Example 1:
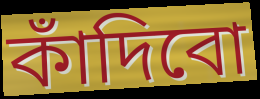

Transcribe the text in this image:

কাঁদিবো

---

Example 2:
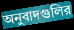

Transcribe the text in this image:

অনুবাদগুলির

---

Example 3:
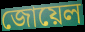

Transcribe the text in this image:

জোয়েল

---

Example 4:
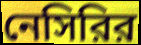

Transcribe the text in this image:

নেসিরির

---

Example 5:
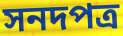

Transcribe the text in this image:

সনদপত্র